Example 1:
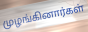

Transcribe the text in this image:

முழங்கினார்கள்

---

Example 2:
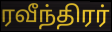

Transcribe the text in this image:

ரவீந்திரர்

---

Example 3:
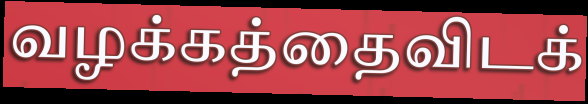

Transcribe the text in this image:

வழக்கத்தைவிடக்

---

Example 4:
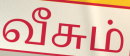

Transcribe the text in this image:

வீசும்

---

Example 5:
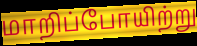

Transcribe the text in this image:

மாறிப்போயிற்று